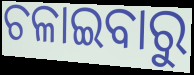
ଚଳାଇବାରୁ